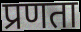
प्रणता